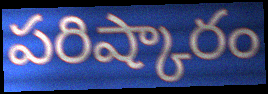
పరిష్కారం